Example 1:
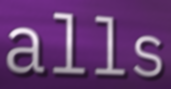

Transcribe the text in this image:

alls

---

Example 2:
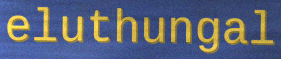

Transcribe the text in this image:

eluthungal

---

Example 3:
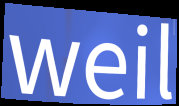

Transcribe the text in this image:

weil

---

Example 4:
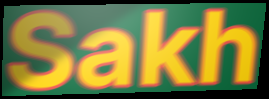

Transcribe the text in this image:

Sakh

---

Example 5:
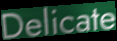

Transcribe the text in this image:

Delicate